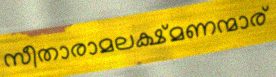
സീതാരാമലക്ഷ്മണന്മാര്